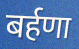
बर्हणा